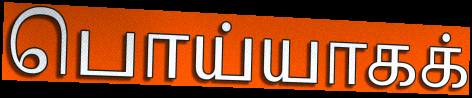
பொய்யாகக்